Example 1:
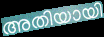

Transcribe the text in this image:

അതിയായി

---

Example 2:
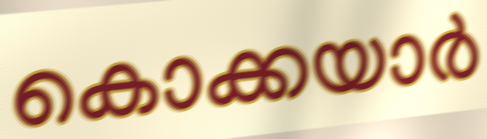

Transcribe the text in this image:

കൊക്കയാർ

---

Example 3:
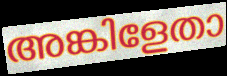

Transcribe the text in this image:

അങ്കിളേതാ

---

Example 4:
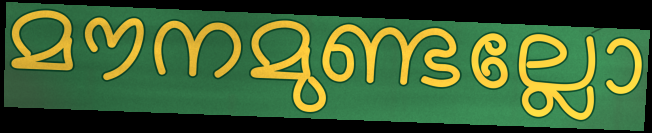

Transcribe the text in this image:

മൗനമുണ്ടല്ലോ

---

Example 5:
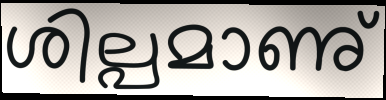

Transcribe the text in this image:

ശില്പമാണു്